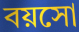
বয়সো